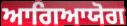
ਆਗਿਆਯੋਗ